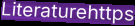
Literaturehttps